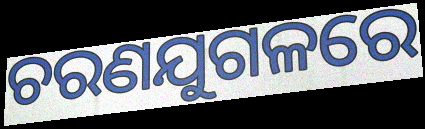
ଚରଣଯୁଗଳରେ